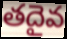
తదైవ